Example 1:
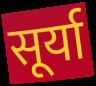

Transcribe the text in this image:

सूर्या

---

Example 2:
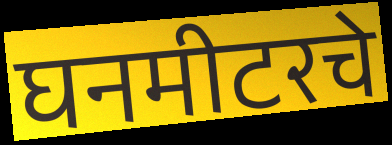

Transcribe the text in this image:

घनमीटरचे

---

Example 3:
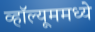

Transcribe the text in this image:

व्हॉल्यूममध्ये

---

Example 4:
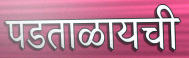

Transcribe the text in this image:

पडताळायची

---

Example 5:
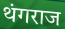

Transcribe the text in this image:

थंगराज